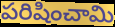
పరిషించామి